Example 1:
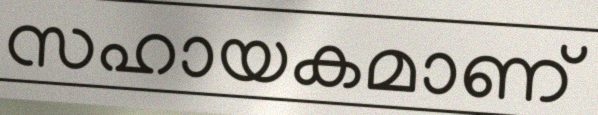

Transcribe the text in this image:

സഹായകമാണ്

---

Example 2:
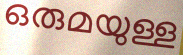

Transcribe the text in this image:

ഒരുമയുള്ള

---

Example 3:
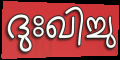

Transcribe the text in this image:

ദുഃഖിച്ചു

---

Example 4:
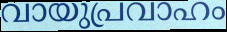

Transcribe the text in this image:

വായുപ്രവാഹം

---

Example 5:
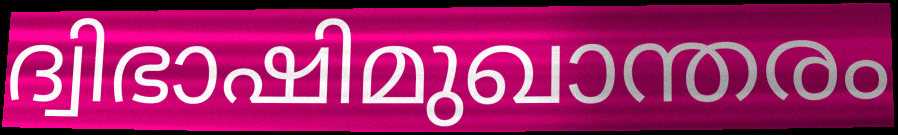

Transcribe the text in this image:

ദ്വിഭാഷിമുഖാന്തരം